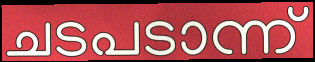
ചടപടാന്ന്